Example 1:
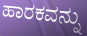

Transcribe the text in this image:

ಹಾರಕವನ್ನು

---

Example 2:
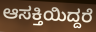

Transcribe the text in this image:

ಆಸಕ್ತಿಯಿದ್ದರೆ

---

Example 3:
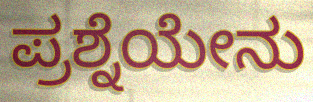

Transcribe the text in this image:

ಪ್ರಶ್ನೆಯೇನು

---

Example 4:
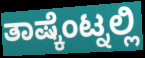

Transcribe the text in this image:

ತಾಷ್ಕೆಂಟ್ನಲ್ಲಿ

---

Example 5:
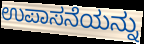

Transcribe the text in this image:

ಉಪಾಸನೆಯನ್ನು